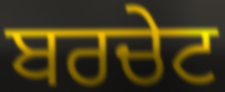
ਬਰਚੇਟ